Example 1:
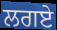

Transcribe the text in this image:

ਲਗਏ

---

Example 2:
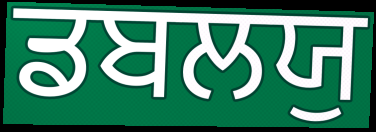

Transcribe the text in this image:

ਡਬਲਯੁ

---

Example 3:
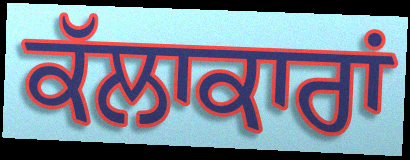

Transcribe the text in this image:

ਕੱਲਾਕਾਰਾਂ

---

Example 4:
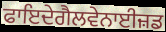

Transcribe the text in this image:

ਫਾਇਦੇਗੈਲਵੇਨਾਈਜ਼ਡ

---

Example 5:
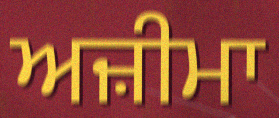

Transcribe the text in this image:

ਅਜ਼ੀਮਾ